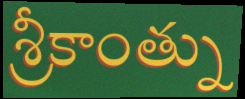
శ్రీకాంత్ను